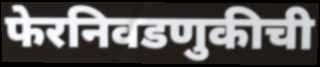
फेरनिवडणुकीची